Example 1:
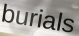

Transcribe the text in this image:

burials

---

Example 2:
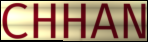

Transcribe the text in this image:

CHHAN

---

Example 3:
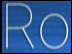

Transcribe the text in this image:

Ro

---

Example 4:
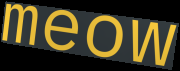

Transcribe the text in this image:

meow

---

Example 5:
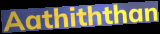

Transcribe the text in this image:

Aathiththan